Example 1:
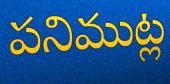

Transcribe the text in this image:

పనిముట్ల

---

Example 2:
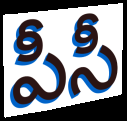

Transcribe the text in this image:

పీసీ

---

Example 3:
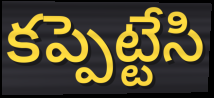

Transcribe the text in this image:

కప్పెట్టేసి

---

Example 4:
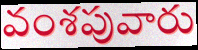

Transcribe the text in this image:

వంశపువారు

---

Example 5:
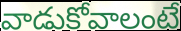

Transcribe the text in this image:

వాడుకోవాలంటే